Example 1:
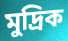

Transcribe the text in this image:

মুদ্রিক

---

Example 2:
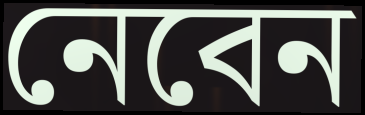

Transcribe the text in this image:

নেবেন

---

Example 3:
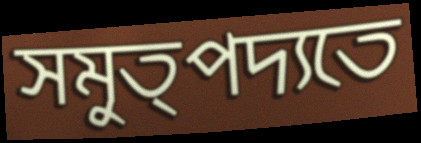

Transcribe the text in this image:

সমুত্পদ্যতে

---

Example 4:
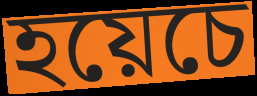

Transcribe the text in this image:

হয়েচে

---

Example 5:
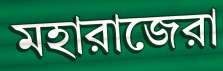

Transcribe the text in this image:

মহারাজেরা